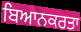
ਬਿਆਨਕਰਤਾ